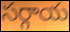
సర్గాయ